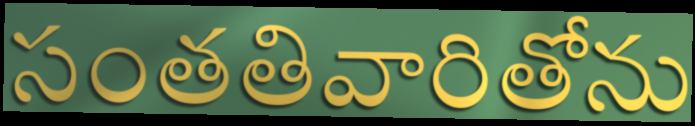
సంతతివారితోను